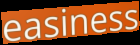
easiness